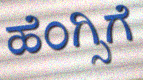
ಹೆಂಗ್ಸಿಗೆ